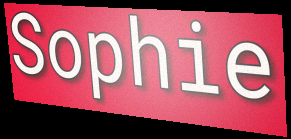
Sophie